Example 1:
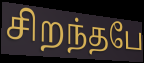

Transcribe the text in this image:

சிறந்தபே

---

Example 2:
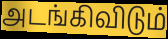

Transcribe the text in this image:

அடங்கிவிடும்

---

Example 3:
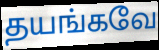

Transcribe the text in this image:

தயங்கவே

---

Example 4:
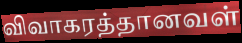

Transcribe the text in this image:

விவாகரத்தானவள்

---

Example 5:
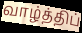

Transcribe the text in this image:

வாழ்த்திப்